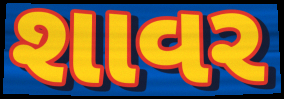
શાવર